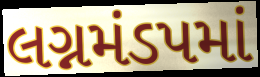
લગ્નમંડપમાં